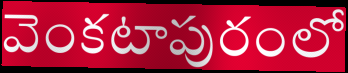
వెంకటాపురంలో